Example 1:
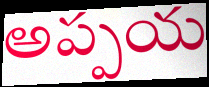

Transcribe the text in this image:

అప్పయ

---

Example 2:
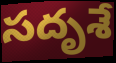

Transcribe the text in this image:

సదృశే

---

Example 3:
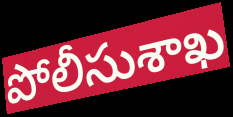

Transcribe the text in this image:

పోలీసుశాఖ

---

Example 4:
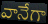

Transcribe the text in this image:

వానేగా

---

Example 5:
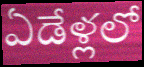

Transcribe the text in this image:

ఏడేళ్లలో